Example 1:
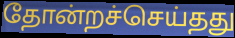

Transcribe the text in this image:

தோன்றச்செய்தது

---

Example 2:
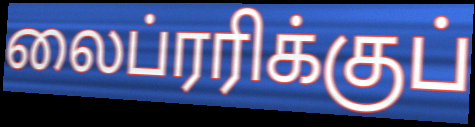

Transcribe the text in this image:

லைப்ரரிக்குப்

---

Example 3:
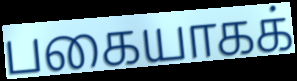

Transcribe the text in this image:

பகையாகக்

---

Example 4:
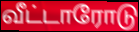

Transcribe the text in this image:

வீட்டாரோடு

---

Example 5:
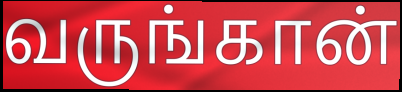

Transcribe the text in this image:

வருங்கான்